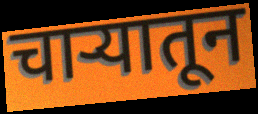
चाऱ्यातून